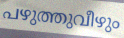
പഴുത്തുവീഴും